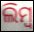
ଲିମ୍ବ